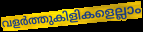
വളർത്തുകിളികളെല്ലാം